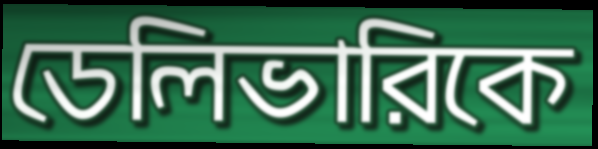
ডেলিভারিকে